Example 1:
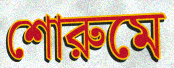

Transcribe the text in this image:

শোরুমে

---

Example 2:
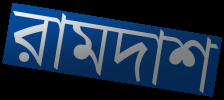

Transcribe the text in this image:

রামদাশ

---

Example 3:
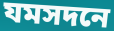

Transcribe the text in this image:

যমসদনে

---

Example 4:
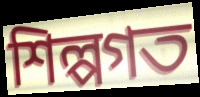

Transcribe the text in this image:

শিল্পগত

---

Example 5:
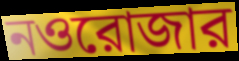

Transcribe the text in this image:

নওরোজার